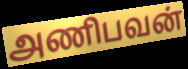
அணிபவன்